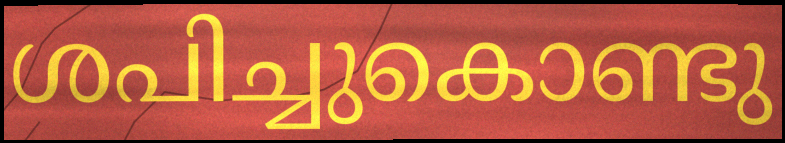
ശപിച്ചുകൊണ്ടു